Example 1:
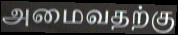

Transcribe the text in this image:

அமைவதற்கு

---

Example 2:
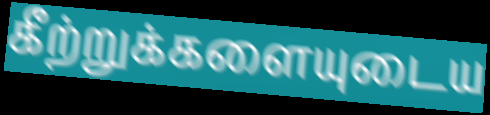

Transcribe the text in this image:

கீற்றுக்களையுடைய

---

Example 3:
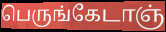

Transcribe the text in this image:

பெருங்கேடாஞ்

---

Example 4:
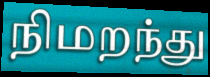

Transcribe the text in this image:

நிமறந்து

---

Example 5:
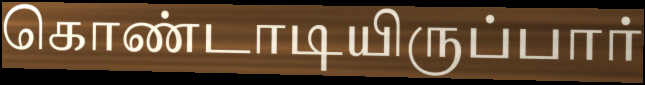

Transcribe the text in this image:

கொண்டாடியிருப்பார்